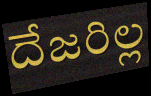
దేజరిల్ల